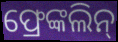
ଫ୍ରେଙ୍କଲିନ୍